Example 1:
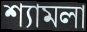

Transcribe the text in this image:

শ্যামলা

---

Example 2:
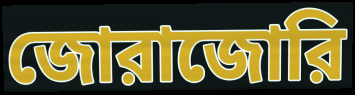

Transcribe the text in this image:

জোরাজোরি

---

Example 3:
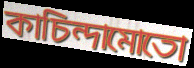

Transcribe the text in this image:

কাচিন্দামোতো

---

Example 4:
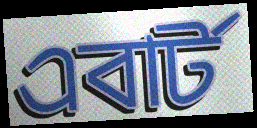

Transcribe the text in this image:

এবার্ট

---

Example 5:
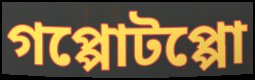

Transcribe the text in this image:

গপ্পোটপ্পো